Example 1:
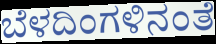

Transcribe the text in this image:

ಬೆಳದಿಂಗಳಿನಂತೆ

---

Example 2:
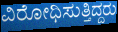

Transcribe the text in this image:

ವಿರೋಧಿಸುತ್ತಿದ್ದರು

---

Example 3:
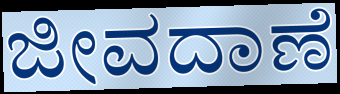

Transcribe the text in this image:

ಜೀವದಾಣೆ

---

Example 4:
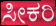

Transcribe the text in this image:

ಸೀಕರಿ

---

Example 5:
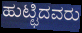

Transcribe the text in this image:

ಹುಟ್ಟಿದವರು